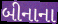
બીનાના